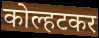
कोल्हटकर